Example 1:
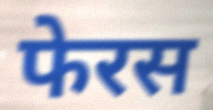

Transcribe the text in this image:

फेरस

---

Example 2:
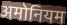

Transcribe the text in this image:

अमोनियम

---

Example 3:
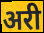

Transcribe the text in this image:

अरी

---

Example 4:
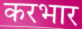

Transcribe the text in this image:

करभार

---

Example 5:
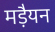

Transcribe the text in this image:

मड़ैयन